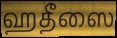
ஹதீஸை